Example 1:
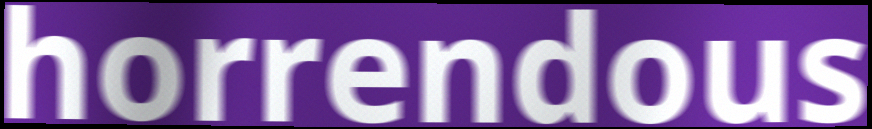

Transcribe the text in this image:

horrendous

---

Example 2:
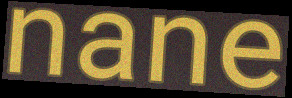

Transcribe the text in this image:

nane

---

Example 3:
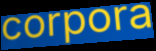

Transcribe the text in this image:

corpora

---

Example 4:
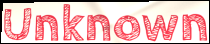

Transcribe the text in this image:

Unknown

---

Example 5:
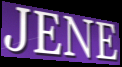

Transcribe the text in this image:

JENE